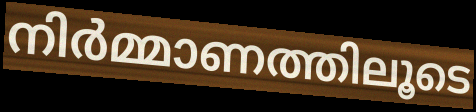
നിർമ്മാണത്തിലൂടെ